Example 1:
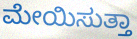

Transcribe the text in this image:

ಮೇಯಿಸುತ್ತಾ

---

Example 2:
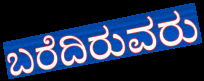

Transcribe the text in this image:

ಬರೆದಿರುವರು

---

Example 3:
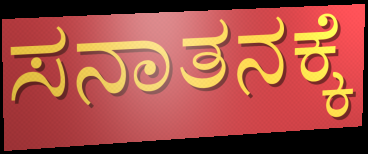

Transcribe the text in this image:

ಸನಾತನಕ್ಕೆ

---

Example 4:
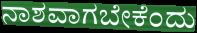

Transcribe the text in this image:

ನಾಶವಾಗಬೇಕೆಂದು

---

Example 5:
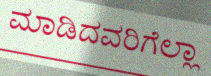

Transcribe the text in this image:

ಮಾಡಿದವರಿಗೆಲ್ಲಾ